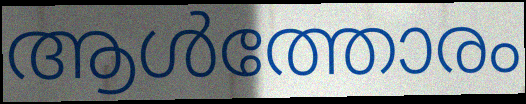
ആൾത്തോരം